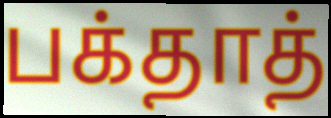
பக்தாத்